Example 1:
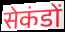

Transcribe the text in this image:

सेकंडों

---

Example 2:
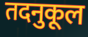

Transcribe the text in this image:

तदनुकूल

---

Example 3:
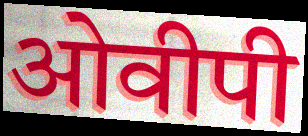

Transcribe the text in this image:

ओवीपी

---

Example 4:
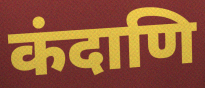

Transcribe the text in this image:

कंदाणि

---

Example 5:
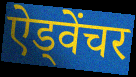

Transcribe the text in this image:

ऐड्वेंचर